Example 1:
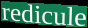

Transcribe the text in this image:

redicule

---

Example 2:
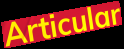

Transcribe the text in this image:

Articular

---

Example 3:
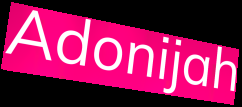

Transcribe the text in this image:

Adonijah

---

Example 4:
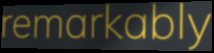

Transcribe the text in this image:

remarkably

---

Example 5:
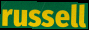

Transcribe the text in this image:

russell